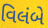
વિલંબે